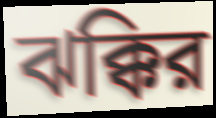
ঝক্কির